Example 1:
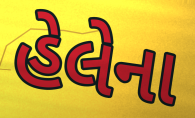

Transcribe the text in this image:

હેલેના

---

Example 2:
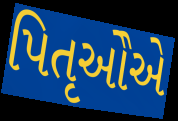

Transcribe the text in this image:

પિતૃઓેએ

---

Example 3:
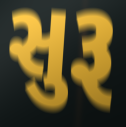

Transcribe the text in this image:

સુરૂ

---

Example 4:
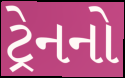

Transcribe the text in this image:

ટ્રેનનો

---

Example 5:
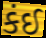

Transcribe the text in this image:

કંઈ